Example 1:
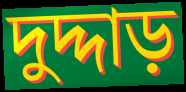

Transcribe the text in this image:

দুদ্দাড়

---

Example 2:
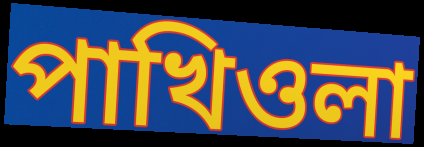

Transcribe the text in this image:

পাখিওলা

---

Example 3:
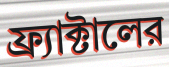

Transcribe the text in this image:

ফ্র্যাক্টালের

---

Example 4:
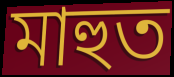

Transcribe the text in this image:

মাহুত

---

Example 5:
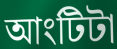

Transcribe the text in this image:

আংটিটা